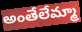
అంతేలేమ్మా